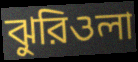
ঝুরিওলা